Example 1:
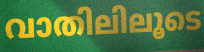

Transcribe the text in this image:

വാതിലിലൂടെ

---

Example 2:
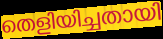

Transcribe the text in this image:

തെളിയിച്ചതായി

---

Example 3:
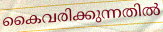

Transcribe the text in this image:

കൈവരിക്കുന്നതിൽ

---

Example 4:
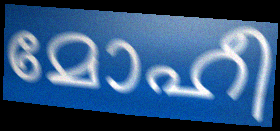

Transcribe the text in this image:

മോഹീ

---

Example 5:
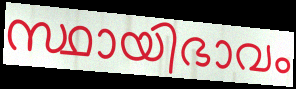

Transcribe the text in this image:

സ്ഥായിഭാവം